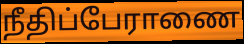
நீதிப்பேராணை